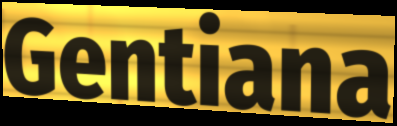
Gentiana